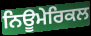
ਨਿਊਮੇਰਿਕਲ